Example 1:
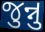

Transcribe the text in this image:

જુન્નુ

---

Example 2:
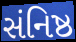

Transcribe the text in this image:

સંનિષ્ઠ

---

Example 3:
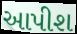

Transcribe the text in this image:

આપીશ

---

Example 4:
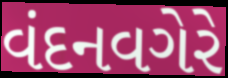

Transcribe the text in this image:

વંદનવગેરે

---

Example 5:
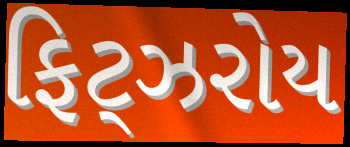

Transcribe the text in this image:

ફિટ્ઝરોય